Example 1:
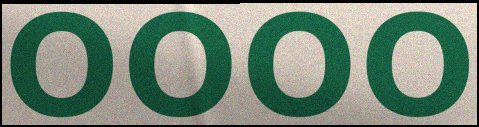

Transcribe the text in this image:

oooo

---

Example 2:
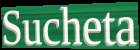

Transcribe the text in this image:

Sucheta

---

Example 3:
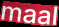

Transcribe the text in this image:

maal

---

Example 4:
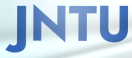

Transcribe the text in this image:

JNTU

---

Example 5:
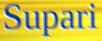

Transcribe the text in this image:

Supari